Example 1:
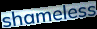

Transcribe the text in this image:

shameless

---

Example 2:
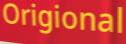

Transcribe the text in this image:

Origional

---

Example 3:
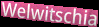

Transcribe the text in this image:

Welwitschia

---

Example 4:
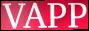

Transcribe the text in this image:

VAPP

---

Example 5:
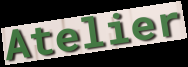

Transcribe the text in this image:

Atelier